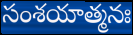
సంశయాత్మనః